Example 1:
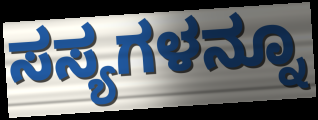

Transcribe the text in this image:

ಸಸ್ಯಗಳನ್ನೂ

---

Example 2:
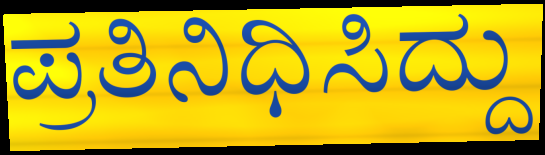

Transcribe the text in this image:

ಪ್ರತಿನಿಧಿಸಿದ್ದು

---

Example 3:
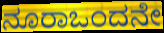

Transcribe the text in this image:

ನೂರಾಒಂದನೇ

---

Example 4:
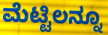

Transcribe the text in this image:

ಮೆಟ್ಟಿಲನ್ನೂ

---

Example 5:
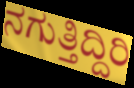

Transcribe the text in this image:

ನಗುತ್ತಿದ್ದಿರಿ